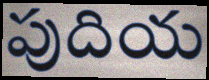
పుదియ